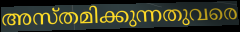
അസ്തമിക്കുന്നതുവരെ